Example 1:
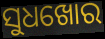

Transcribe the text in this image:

ସୁଧଖୋର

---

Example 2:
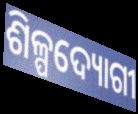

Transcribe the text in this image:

ଶିଳ୍ପଦ୍ୟୋଗୀ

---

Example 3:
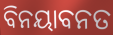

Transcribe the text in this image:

ବିନୟାବନତ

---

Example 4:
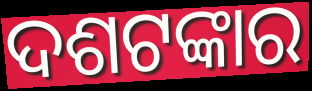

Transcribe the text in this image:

ଦଶଟଙ୍କାର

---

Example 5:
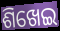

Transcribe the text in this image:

ଶିଖେଇ